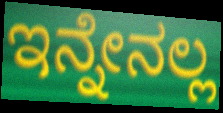
ಇನ್ನೇನಲ್ಲ